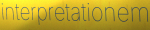
interpretationem